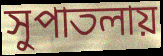
সুপাতলায়